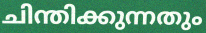
ചിന്തിക്കുന്നതും